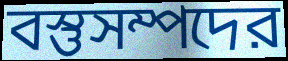
বস্তুসম্পদের